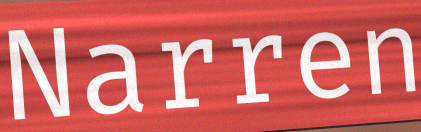
Narren